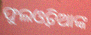
ଫୁଲଓ୍ୱତିଆଙ୍କ